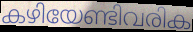
കഴിയേണ്ടിവരിക